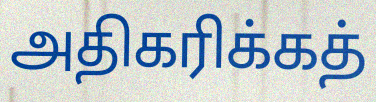
அதிகரிக்கத்